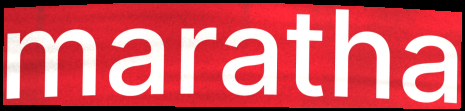
maratha